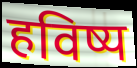
हविष्‍य